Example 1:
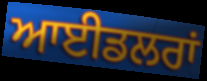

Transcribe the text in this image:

ਆਈਡਲਰਾਂ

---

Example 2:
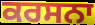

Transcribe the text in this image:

ਕਰਸਨਾ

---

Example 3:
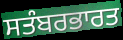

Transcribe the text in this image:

ਸਤੰਬਰਭਾਰਤ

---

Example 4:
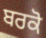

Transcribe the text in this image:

ਬਰਕੋ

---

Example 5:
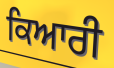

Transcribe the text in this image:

ਕਿਆਰੀ